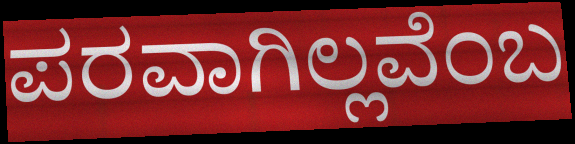
ಪರವಾಗಿಲ್ಲವೆಂಬ